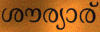
ശൗര്യാര്